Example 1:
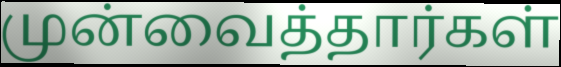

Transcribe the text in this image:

முன்வைத்தார்கள்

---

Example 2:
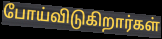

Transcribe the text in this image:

போய்விடுகிறார்கள்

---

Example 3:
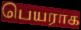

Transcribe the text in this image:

பெயராக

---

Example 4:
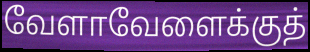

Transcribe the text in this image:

வேளாவேளைக்குத்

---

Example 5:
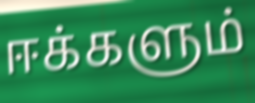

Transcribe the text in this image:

ஈக்களும்